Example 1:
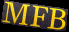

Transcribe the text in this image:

MFB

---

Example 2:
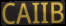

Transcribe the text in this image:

CAIIB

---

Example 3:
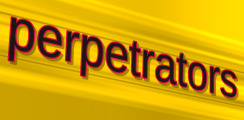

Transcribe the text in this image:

perpetrators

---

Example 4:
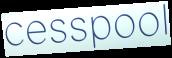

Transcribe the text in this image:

cesspool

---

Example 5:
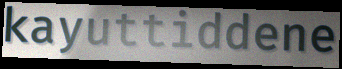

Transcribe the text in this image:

kayuttiddene